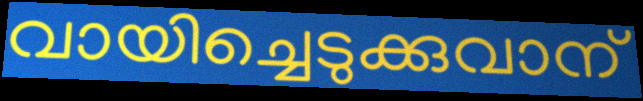
വായിച്ചെടുക്കുവാന്